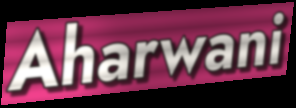
Aharwani